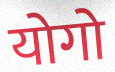
योगो